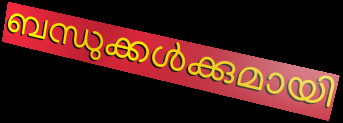
ബന്ധുക്കൾക്കുമായി